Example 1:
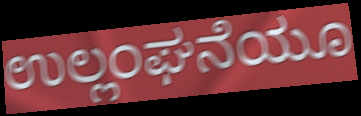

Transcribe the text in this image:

ಉಲ್ಲಂಘನೆಯೂ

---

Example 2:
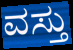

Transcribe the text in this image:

ವಸ್ತು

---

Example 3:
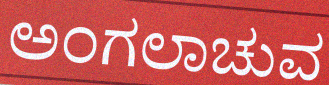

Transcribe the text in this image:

ಅಂಗಲಾಚುವ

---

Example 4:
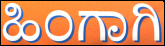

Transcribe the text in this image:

ಹಿಂಗಾಗಿ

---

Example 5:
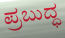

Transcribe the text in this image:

ಪ್ರಬುದ್ಧ